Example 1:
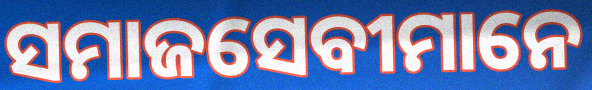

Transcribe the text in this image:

ସମାଜସେବୀମାନେ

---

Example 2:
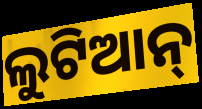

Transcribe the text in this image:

ଲୁଟିଆନ୍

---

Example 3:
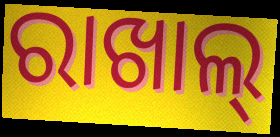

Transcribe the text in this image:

ରାଖାଲ୍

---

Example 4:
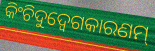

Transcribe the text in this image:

କିଂଚିଦୁଦ୍ବେଗକାରଣମ୍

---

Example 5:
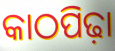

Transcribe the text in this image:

କାଠପିଢ଼ା